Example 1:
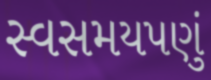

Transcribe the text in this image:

સ્વસમયપણું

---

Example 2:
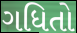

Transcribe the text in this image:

ગધિતો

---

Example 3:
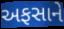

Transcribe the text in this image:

અફસાને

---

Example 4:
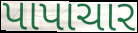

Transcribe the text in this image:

પાપાચાર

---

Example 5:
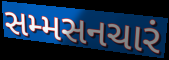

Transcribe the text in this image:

સમ્મસનચારં